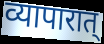
व्यापारात्